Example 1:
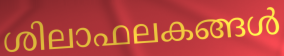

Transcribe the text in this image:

ശിലാഫലകങ്ങൾ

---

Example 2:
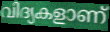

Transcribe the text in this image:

വിദ്യകളാണ്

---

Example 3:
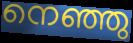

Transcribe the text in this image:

നെഞ്ഞു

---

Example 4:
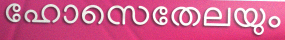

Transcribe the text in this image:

ഹോസെതേലയും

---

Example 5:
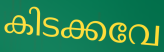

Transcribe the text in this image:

കിടക്കവേ